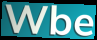
Wbe